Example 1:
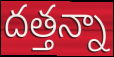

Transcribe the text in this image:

దత్తన్నా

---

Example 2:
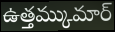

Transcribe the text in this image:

ఉత్తమ్కుమార్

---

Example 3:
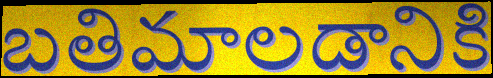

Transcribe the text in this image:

బతిమాలడానికి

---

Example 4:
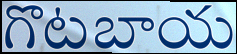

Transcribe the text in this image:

గొటబాయ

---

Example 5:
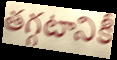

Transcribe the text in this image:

తగ్గటానికీ